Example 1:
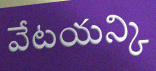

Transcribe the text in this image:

వేటయన్కి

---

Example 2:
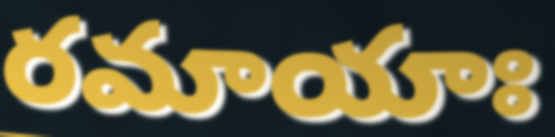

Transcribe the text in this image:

రమాయాః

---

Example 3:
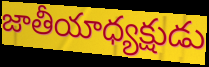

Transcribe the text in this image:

జాతీయాధ్యక్షుడు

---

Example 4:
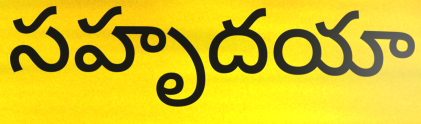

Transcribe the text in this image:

సహృదయా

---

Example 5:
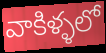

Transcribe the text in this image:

వాకిళ్ళలో